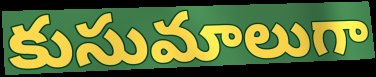
కుసుమాలుగా